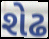
શેઢ